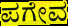
ಪಗೇವ